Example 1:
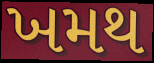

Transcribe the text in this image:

ખમથ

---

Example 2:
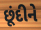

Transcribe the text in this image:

છૂંદીને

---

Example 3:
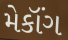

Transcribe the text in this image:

મેકૉંગ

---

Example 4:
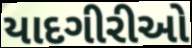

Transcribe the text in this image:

યાદગીરીઓ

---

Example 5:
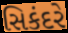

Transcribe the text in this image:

સિકંદરે